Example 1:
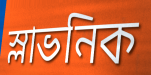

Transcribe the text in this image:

স্লাভনিক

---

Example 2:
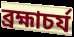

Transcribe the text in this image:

ব্ৰহ্মাচৰ্য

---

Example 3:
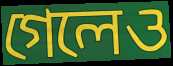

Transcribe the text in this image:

গেলেও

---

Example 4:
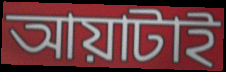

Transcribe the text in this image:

আয়াটাই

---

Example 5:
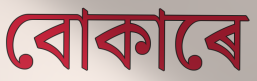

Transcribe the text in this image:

বোকাৰে